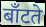
बाँटते